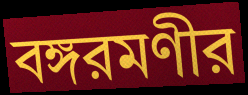
বঙ্গরমণীর